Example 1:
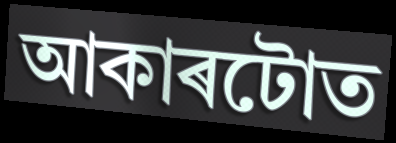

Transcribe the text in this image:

আকাৰটোত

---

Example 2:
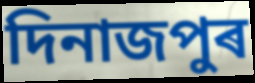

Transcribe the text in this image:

দিনাজপুৰ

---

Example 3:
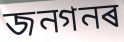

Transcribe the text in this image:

জনগনৰ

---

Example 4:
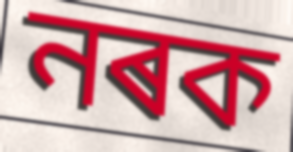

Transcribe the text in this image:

নৰক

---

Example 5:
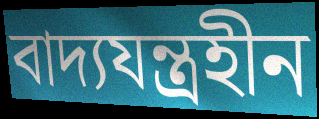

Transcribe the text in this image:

বাদ্যযন্ত্ৰহীন